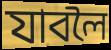
যাবলৈ